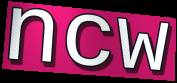
ncw